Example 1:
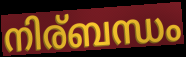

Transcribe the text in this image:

നിര്ബന്ധം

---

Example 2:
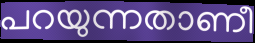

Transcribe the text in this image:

പറയുന്നതാണീ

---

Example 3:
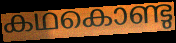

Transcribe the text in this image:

കഥകൊണ്ടു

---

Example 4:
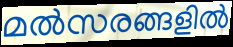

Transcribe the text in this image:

മൽസരങ്ങളിൽ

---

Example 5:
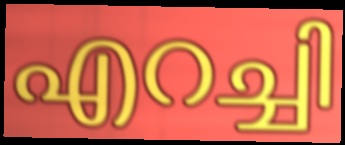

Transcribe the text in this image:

എറച്ചി